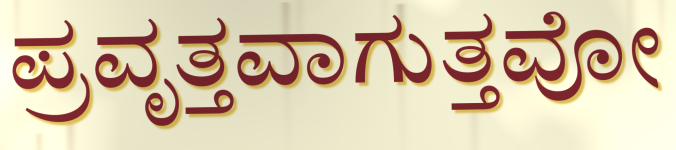
ಪ್ರವೃತ್ತವಾಗುತ್ತವೋ